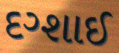
દગ્શાઈ